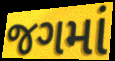
જગમાં